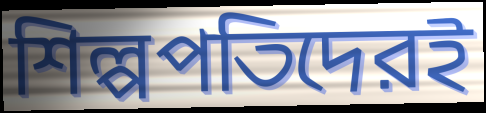
শিল্পপতিদেরই